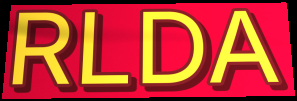
RLDA